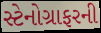
સ્ટેનોગ્રાફરની